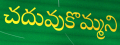
చదువుకొమ్మని